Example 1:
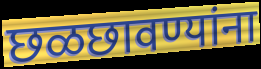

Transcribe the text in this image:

छळछावण्यांना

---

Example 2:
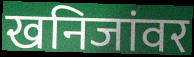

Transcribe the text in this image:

खनिजांवर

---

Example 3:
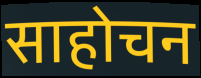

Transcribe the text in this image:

साहोचन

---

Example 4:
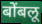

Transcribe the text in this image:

बोंबलू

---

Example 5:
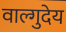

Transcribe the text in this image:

वाल्गुदेय